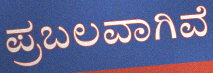
ಪ್ರಬಲವಾಗಿವೆ